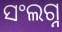
ସଂଲଗ୍ନ